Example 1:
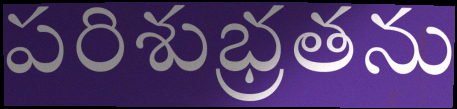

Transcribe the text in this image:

పరిశుభ్రతను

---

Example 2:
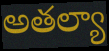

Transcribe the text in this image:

అతల్యా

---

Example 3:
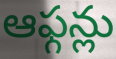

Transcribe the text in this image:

ఆఫ్గన్లు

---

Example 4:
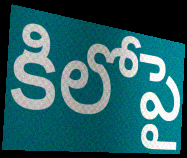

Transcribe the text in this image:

కిలోపై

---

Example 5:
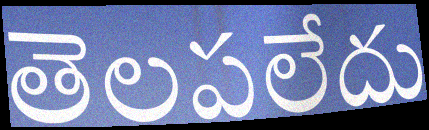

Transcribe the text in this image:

తెలపలేదు